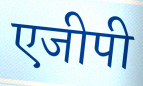
एजीपी